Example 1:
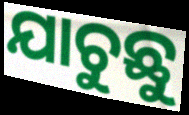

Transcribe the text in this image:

ଯାଚୁଛୁ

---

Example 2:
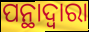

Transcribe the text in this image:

ପନ୍ଥାଦ୍ୱାରା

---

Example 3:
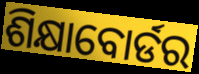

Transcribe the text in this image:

ଶିକ୍ଷାବୋର୍ଡର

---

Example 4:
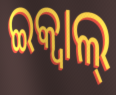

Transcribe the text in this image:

ଇକ୍ବାଲ୍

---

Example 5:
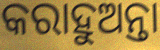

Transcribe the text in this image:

କରାହୁଅନ୍ତା